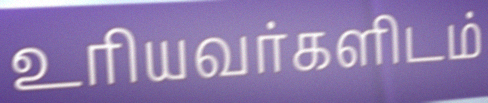
உரியவர்களிடம்